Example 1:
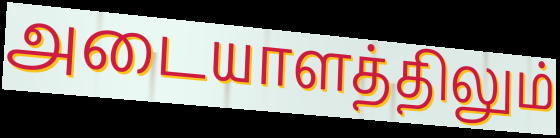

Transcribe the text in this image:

அடையாளத்திலும்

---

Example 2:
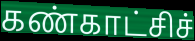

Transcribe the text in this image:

கண்காட்சிச்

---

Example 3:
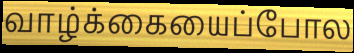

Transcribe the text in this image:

வாழ்க்கையைப்போல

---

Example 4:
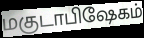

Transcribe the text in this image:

மகுடாபிஷேகம்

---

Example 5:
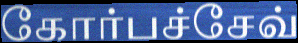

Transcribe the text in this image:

கோர்பச்சேவ்